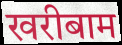
खरीबाम